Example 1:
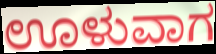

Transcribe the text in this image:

ಊಳುವಾಗ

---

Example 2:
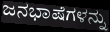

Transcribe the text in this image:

ಜನಭಾಷೆಗಳನ್ನು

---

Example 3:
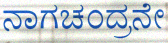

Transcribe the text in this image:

ನಾಗಚಂದ್ರನೇ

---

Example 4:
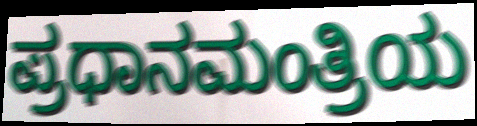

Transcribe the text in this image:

ಪ್ರಧಾನಮಂತ್ರಿಯ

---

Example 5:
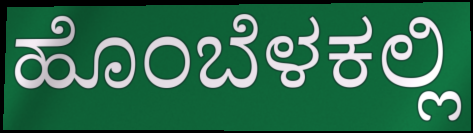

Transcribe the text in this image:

ಹೊಂಬೆಳಕಲ್ಲಿ